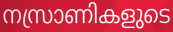
നസ്രാണികളുടെ